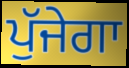
ਪੁੱਜੇਗਾ